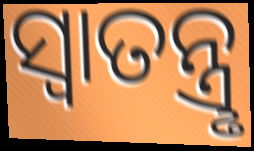
ସ୍ବାତନ୍ତ୍ରୢ